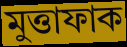
মুত্তাফাক